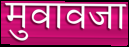
मुवावजा